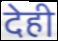
देही